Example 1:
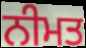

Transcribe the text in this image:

ਨੀਮਤ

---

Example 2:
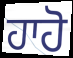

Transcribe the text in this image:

ਹਾਹੋ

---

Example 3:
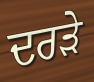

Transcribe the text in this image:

ਦਰੜੇ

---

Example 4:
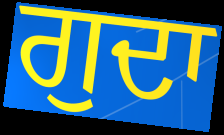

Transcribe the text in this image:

ਗੁਦਾ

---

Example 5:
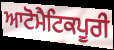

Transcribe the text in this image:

ਆਟੋਮੈਟਿਕਪੂਰੀ